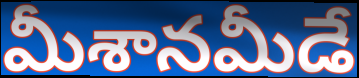
మీశానమీడే